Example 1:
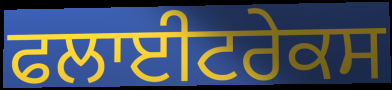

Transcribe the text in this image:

ਫਲਾਈਟਰੇਕਸ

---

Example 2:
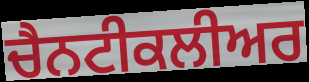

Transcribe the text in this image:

ਚੈਨਟੀਕਲੀਅਰ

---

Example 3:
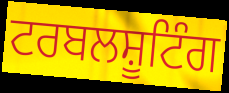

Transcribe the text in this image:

ਟਰਬਲਸ਼ੂਟਿੰਗ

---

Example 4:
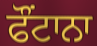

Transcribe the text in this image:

ਫੌਂਟਾਨਾ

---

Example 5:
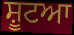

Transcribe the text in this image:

ਸ਼ੂਟਆ